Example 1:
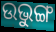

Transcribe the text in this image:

ଉଭୁଙ୍ଗ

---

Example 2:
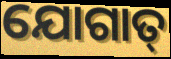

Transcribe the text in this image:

ଯୋଗାତ୍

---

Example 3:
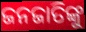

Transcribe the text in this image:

ଜନଜାତିଙ୍କୁ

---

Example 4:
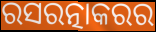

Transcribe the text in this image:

ରସରତ୍ନାକରର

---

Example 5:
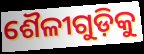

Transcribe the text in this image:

ଶୈଳୀଗୁଡ଼ିକୁ